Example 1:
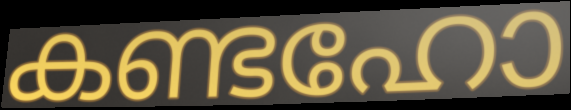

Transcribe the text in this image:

കണ്ടഹോ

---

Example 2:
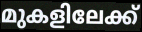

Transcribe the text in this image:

മുകളിലേക്ക്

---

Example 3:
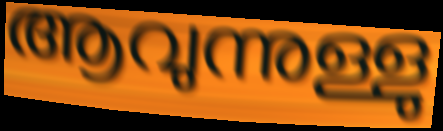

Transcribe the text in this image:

ആവുന്നുള്ളു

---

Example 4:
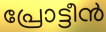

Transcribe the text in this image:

പ്രോട്ടീൻ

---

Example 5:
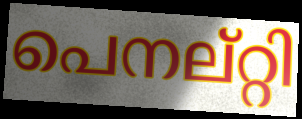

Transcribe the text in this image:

പെനല്റ്റി